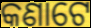
କଣାଟେ